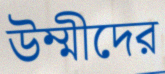
উম্মীদের